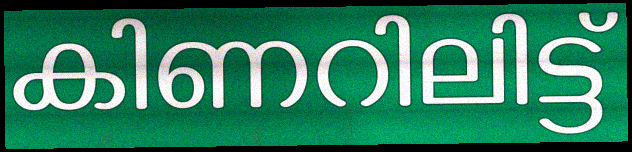
കിണറിലിട്ട്